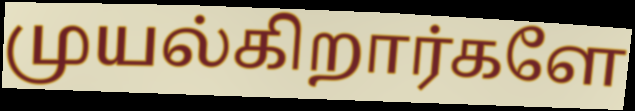
முயல்கிறார்களே